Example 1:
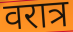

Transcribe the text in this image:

वरात्र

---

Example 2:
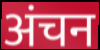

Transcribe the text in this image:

अंचन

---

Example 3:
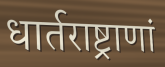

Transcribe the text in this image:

धार्तराष्ट्राणां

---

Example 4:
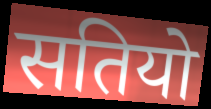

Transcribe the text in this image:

सतियो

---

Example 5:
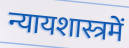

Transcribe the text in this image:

न्यायशास्त्रमें